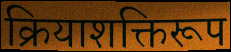
क्रियाशक्तिरूप